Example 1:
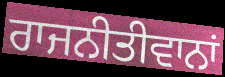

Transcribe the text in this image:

ਰਾਜਨੀਤੀਵਾਨਾਂ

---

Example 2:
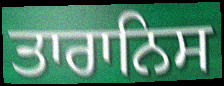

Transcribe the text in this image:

ਤਾਰਾਨਿਸ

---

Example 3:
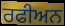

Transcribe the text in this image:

ਰਫੀਅਨ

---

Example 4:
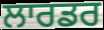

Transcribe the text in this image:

ਲਾਰਡਰ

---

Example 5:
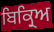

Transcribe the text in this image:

ਬਿਕ੍ਰਿਅ